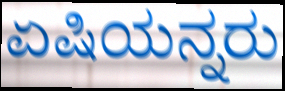
ಏಷಿಯನ್ನರು